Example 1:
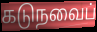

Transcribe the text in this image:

கடுநவைப்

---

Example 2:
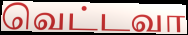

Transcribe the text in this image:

வெட்டவா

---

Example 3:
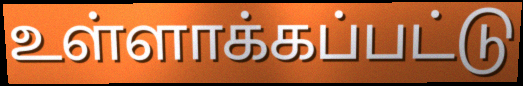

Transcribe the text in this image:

உள்ளாக்கப்பட்டு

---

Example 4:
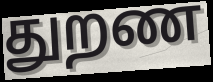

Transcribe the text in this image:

துறண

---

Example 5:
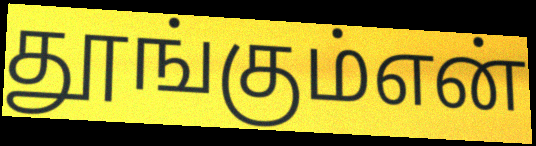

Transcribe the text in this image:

தூங்கும்என்